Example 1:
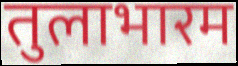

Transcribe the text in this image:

तुलाभारम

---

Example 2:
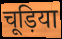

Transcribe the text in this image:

चूड़िया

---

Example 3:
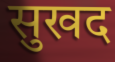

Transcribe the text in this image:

सुखद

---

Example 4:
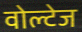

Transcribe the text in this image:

वोल्टेज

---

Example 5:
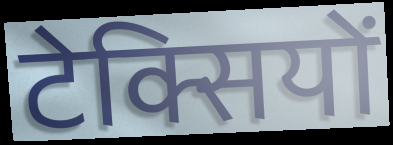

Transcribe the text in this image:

टेक्सियों